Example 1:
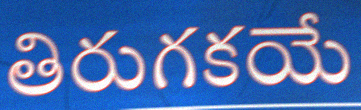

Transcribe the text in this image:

తిరుగకయే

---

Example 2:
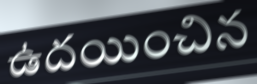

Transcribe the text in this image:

ఉదయించిన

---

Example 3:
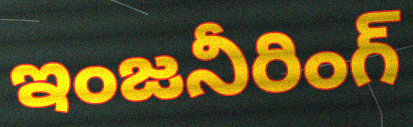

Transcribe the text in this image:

ఇంజనీరింగ్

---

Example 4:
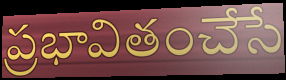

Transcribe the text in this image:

ప్రభావితంచేసే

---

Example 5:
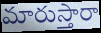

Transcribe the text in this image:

మారుస్తారా